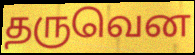
தருவென